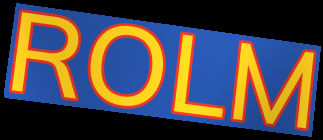
ROLM